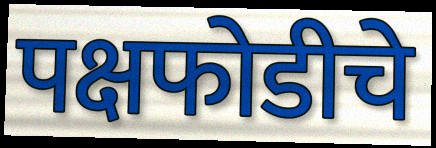
पक्षफोडीचे